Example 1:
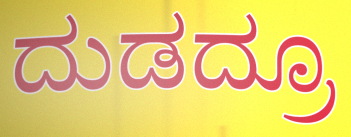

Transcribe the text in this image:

ದುಡದ್ರೂ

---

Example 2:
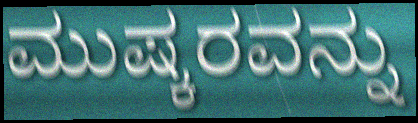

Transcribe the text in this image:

ಮುಷ್ಕರವನ್ನು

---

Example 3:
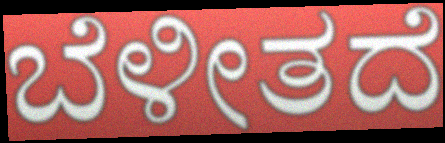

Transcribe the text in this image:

ಬೆಳೀತದೆ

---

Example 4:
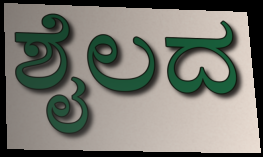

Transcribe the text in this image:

ಶೈಲದ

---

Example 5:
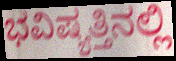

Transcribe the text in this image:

ಭವಿಷ್ಯತ್ತಿನಲ್ಲಿ